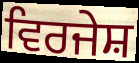
ਵਿਰਜੇਸ਼